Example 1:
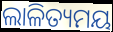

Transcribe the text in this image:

ଲାଳିତ୍ୟମୟ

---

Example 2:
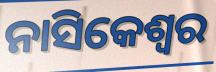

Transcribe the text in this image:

ନାସିକେଶ୍ୱର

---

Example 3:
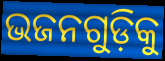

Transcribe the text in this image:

ଭଜନଗୁଡ଼ିକୁ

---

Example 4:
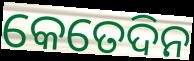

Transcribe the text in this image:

କେତେଦିନ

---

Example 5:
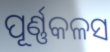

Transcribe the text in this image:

ପୂର୍ଣ୍ଣକଳସ